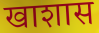
खाशास